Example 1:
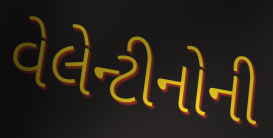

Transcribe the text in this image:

વેલેન્ટીનોની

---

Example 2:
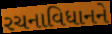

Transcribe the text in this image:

રચનાવિધાનને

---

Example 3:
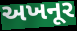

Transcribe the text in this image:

અખનૂર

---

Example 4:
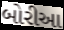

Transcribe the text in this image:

બોરીઆ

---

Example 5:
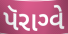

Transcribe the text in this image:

પૅરાગ્વે